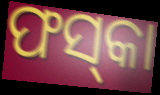
ଫସ୍‌କା